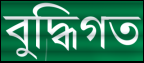
বুদ্ধিগত